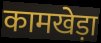
कामखेड़ा